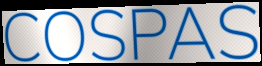
COSPAS